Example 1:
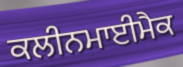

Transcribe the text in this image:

ਕਲੀਨਮਾਈਮੈਕ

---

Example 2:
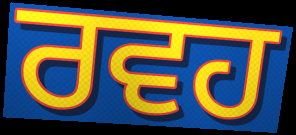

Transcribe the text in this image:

ਰਵਹ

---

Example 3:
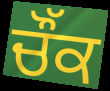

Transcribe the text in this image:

ਚੌੱਕ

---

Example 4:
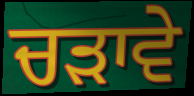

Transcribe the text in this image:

ਚੜਾਵੇ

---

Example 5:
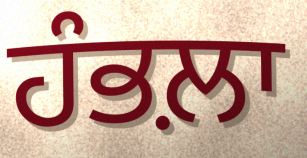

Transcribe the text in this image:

ਹੰਭਲ਼ਾ